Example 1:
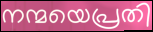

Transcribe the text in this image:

നന്മയെപ്രതി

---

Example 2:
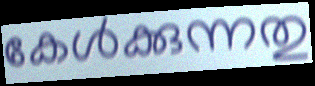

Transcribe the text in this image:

കേൾക്കുന്നതു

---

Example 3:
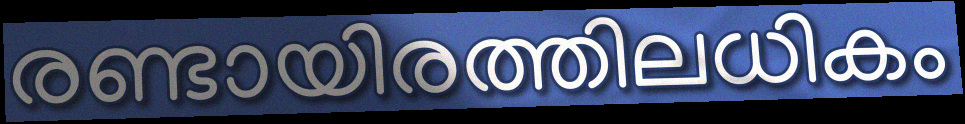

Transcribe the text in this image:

രണ്ടായിരത്തിലധികം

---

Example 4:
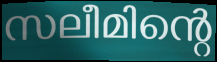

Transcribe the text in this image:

സലീമിന്റെ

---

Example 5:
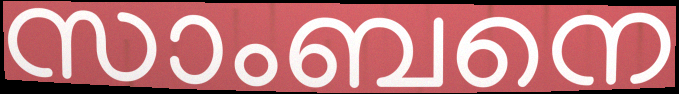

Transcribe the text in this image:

സാംബനെ